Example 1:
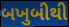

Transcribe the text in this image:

બખુબીથી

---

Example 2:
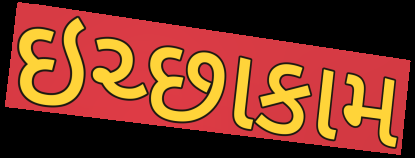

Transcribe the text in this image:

ઇચ્છાકામ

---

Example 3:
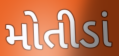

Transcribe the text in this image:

મોતીડાં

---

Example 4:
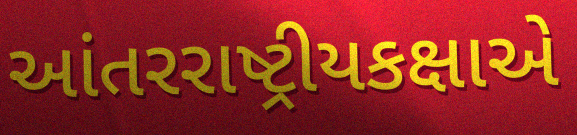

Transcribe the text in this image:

આંતરરાષ્ટ્રીયકક્ષાએ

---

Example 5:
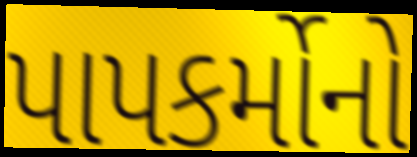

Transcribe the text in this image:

પાપકર્મોનો